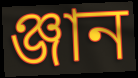
ঞ্জান